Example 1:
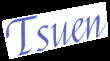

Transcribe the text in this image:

Tsuen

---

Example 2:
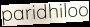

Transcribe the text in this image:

paridhiloo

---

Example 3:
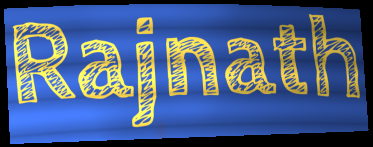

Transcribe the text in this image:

Rajnath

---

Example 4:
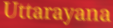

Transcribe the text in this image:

Uttarayana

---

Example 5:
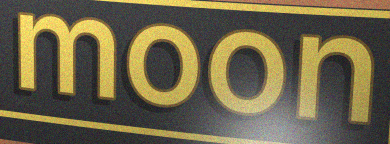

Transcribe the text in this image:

moon